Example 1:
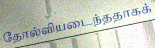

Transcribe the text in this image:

தோல்வியடைந்ததாகக்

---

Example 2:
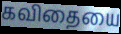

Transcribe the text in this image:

கவிதையை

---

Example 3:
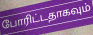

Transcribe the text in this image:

போரிட்டதாகவும்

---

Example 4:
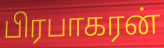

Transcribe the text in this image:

பிரபாகரன்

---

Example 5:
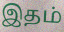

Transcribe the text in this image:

இதம்